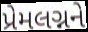
પ્રેમલગ્નને